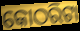
କୋଠରିଟା